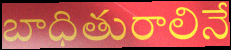
బాధితురాలినే